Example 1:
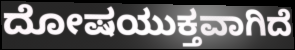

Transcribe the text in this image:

ದೋಷಯುಕ್ತವಾಗಿದೆ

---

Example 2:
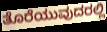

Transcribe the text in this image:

ತೊರೆಯುವುದರಲ್ಲಿ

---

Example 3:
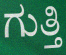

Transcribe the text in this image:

ಗುತ್ತಿ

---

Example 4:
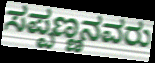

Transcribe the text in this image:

ಸಪ್ಪಣ್ಣನವರು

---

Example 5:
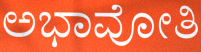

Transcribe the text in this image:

ಅಭಾವೋತಿ